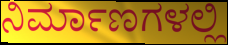
ನಿರ್ಮಾಣಗಳಲ್ಲಿ